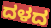
ದಳದ